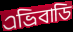
এভ্ৰিবাডি